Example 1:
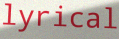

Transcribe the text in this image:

lyrical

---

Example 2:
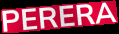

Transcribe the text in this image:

PERERA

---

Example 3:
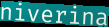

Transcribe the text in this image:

niverina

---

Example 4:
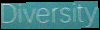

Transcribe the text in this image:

Diversity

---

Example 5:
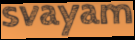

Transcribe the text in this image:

svayam